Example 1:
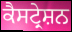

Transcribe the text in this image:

ਕੈਸਟ੍ਰੇਸ਼ਨ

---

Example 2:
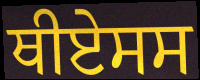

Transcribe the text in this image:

ਥੀਏਸਸ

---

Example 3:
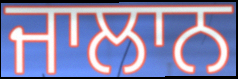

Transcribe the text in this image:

ਜਾਲਾਨ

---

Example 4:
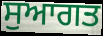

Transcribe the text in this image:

ਸੁਆਗਤ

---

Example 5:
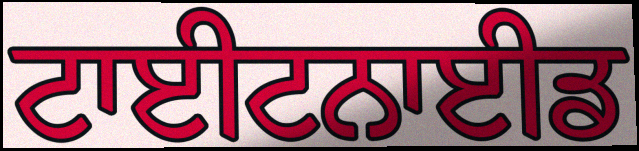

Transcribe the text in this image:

ਟਾਈਟਨਾਈਡ